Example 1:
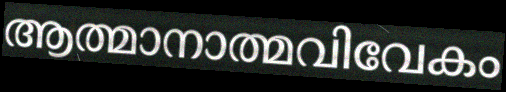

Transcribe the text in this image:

ആത്മാനാത്മവിവേകം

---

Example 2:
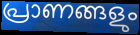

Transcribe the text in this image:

പ്രാണങ്ങളും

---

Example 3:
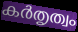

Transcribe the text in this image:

കർതൃത്വം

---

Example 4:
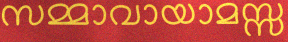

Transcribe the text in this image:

സമ്മാവായാമസ്സ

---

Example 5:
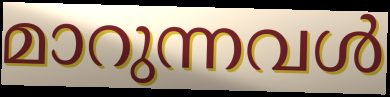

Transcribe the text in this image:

മാറുന്നവൾ